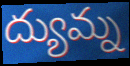
ద్యుమ్న